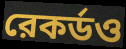
রেকর্ডও